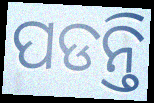
ପଡନ୍ତି